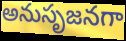
అనుసృజనగా